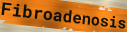
Fibroadenosis